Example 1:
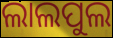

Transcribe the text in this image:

ଲାଲପୁଲ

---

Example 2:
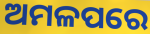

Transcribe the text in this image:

ଅମଳପରେ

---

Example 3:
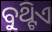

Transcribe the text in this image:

ବୁଥ୍ଟିଏ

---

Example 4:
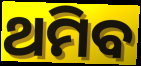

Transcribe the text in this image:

ଥମିବ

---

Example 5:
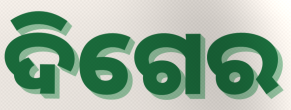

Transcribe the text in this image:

ଦିଗେର